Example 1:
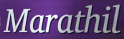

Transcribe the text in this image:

Marathil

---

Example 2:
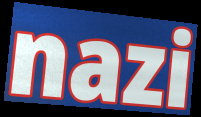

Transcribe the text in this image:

nazi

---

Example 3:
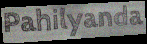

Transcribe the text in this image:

Pahilyanda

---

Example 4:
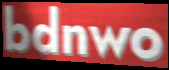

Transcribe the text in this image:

bdnwo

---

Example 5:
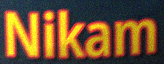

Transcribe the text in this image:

Nikam